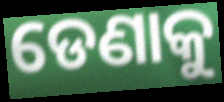
ଡେଣାକୁ